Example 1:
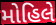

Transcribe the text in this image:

મોહિલે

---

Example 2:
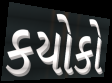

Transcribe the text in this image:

કયોકો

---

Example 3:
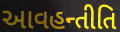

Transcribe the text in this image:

આવહન્તીતિ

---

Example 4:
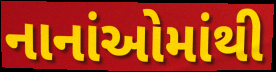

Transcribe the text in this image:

નાનાંઓમાંથી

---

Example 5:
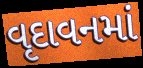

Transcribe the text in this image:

વૃદાવનમાં